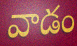
వాడం